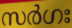
സർഗഃ